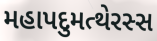
મહાપદુમત્થેરસ્સ